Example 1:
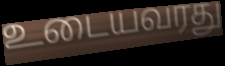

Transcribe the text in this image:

உடையவரது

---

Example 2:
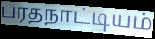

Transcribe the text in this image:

பரதநாட்டியம்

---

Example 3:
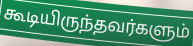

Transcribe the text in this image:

கூடியிருந்தவர்களும்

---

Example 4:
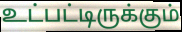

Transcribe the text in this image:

உட்பட்டிருக்கும்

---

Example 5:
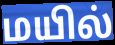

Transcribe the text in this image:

மயில்